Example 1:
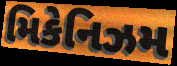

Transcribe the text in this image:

મિકેનિઝમ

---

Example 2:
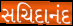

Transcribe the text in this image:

સચિદાનંદ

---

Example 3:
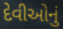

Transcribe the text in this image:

દેવીઓનું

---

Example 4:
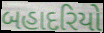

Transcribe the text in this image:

બહાદરિયો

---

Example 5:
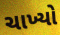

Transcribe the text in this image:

ચાખ્યો